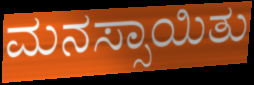
ಮನಸ್ಸಾಯಿತು